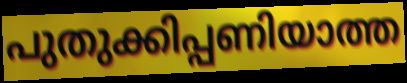
പുതുക്കിപ്പണിയാത്ത